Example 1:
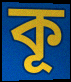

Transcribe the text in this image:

কূ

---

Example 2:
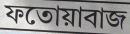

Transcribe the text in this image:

ফতোয়াবাজ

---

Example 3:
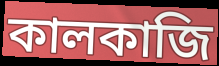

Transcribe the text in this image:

কালকাজি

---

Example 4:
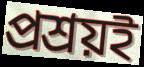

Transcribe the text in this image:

প্রশ্রয়ই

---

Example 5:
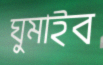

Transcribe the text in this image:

ঘুমাইব